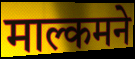
माल्कमने